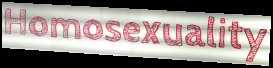
Homosexuality